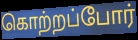
கொற்றப்போர்